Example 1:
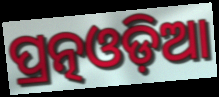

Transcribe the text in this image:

ପ୍ରତ୍ନଓଡ଼ିଆ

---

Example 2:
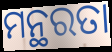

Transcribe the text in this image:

ମନ୍ଥରତା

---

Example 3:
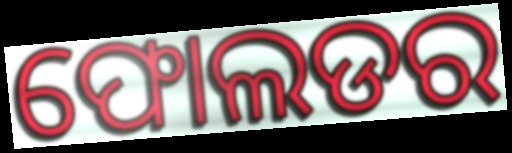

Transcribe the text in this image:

ଫୋଲଡର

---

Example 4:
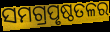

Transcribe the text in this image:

ସମଗ୍ରପୃଷ୍ଠତଳର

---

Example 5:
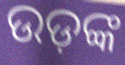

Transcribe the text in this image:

ଉଡ଼ଙ୍କ